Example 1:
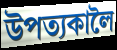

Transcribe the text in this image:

উপত্যকালৈ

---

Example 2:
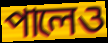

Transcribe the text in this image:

পালেও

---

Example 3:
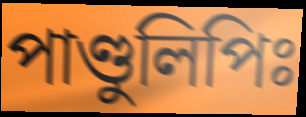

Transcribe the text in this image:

পাণ্ডুলিপিঃ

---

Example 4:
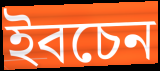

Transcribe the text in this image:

ইবচেন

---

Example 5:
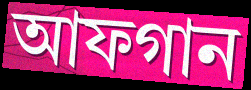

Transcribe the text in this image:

আফগান